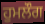
ਹੁਮਲੌਗ